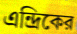
এন্দ্রিকের